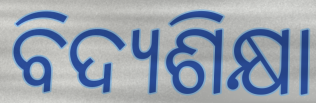
ବିଦ୍ୟଶିକ୍ଷା